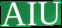
AIU